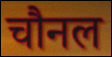
चौनल